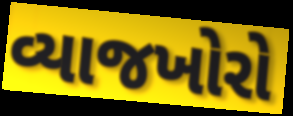
વ્યાજખોરો